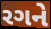
રગને